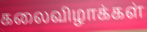
கலைவிழாக்கள்